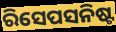
ରିସେପସନିଷ୍ଟ